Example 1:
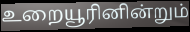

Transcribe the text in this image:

உறையூரினின்றும்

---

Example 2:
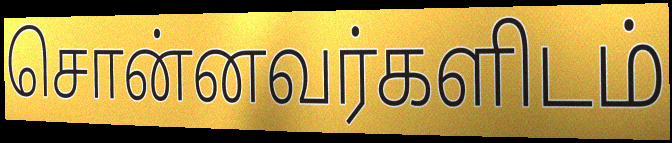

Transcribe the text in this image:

சொன்னவர்களிடம்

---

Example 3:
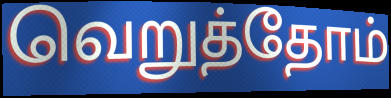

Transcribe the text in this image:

வெறுத்தோம்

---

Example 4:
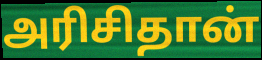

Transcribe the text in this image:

அரிசிதான்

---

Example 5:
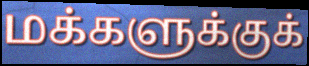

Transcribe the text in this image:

மக்களுக்குக்